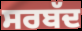
ਸਰਬੱਦ